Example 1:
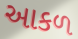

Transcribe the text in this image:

આકળ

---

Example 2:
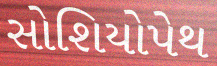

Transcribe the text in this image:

સોશિયોપેથ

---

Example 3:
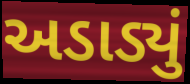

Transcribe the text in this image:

અડાડ્યું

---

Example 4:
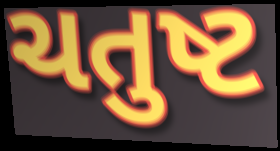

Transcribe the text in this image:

ચતુષ્ટ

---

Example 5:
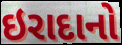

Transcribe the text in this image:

ઇરાદાનો